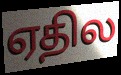
ஏதில